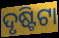
ଦୃଷ୍ଟିଟା